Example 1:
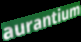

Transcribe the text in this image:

aurantium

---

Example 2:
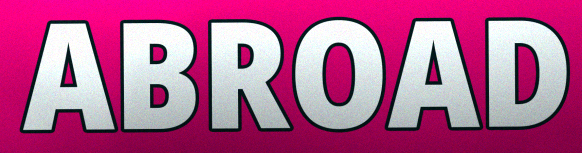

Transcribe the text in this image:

ABROAD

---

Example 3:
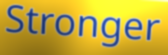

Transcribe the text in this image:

Stronger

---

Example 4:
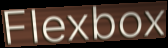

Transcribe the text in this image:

Flexbox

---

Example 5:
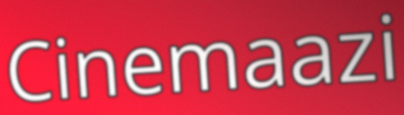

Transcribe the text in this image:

Cinemaazi